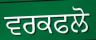
ਵਰਕਫਲੋ